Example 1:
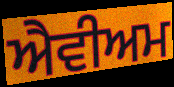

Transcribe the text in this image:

ਐਵੀਅਮ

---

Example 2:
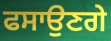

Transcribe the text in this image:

ਫਸਾਉਣਗੇ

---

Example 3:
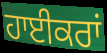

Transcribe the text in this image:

ਹਾਈਕਰਾਂ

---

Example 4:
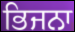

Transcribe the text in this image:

ਭਿਜਨਾ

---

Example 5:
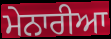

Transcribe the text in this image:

ਮੇਨਾਰੀਆ